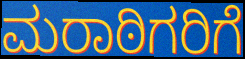
ಮರಾಠಿಗರಿಗೆ